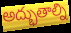
అద్భుతాల్ని